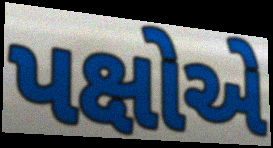
પક્ષોએ